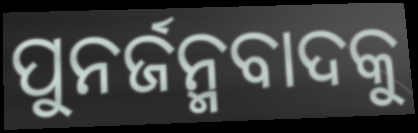
ପୁନର୍ଜନ୍ମବାଦକୁ